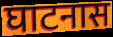
घाटनास